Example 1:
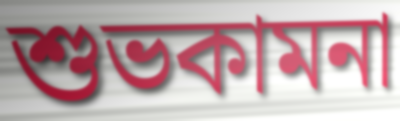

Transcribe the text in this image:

শুভকামনা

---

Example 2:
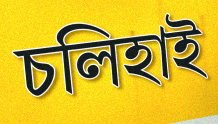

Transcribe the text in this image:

চলিহাই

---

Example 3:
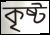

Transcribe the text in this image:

কৃষ্ট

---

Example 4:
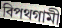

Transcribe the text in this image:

বিপথগামী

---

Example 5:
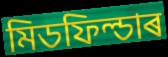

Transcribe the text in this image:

মিডফিল্ডাৰ